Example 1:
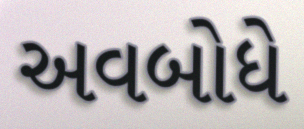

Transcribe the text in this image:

અવબોધે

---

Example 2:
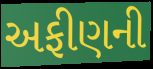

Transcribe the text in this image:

અફીણની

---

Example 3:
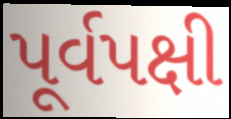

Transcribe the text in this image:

પૂર્વપક્ષી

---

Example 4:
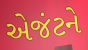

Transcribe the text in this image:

એજંટને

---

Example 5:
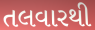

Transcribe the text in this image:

તલવારથી